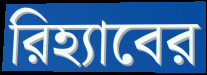
রিহ্যাবের